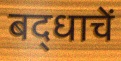
बद्धाचें